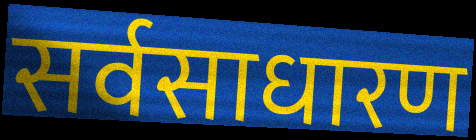
सर्वसाधारण